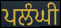
ਪਲੰਘੀ